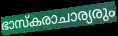
ഭാസ്കരാചാര്യരും